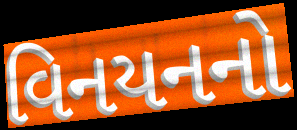
વિનયનનો